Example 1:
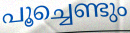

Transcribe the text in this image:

പൂച്ചെണ്ടും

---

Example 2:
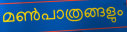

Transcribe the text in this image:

മൺപാത്രങ്ങളും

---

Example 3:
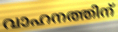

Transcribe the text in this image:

വാഹനത്തിന്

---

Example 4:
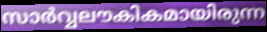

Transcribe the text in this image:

സാർവ്വലൗകികമായിരുന്ന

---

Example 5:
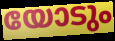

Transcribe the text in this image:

യോടും